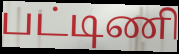
பட்டிணி